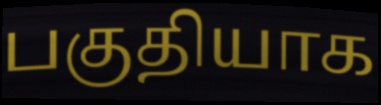
பகுதியாக